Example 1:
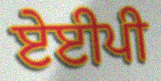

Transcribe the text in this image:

ਏਈਪੀ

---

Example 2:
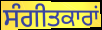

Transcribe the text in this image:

ਸੰਗੀਤਕਾਰਾਂ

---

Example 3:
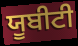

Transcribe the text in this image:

ਯੂਬੀਟੀ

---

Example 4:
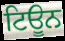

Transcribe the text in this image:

ਟਿਊਨ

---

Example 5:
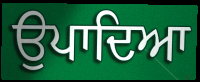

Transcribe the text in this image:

ਉਪਾਦਿਆ